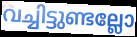
വച്ചിട്ടുണ്ടല്ലോ